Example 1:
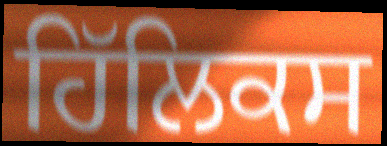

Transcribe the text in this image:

ਹਿੱਲਿਕਸ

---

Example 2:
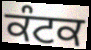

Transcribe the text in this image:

ਕੰਟਕ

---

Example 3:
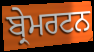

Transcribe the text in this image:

ਬ੍ਰੇਮਰਟਨ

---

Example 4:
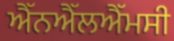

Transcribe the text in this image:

ਐੱਨਐੱਲਐੱਮਸੀ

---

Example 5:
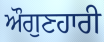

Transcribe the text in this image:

ਔਗੁਣਹਾਰੀ